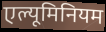
एल्यूमिनियम